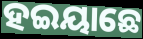
ହଇୟାଛେ